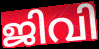
ജിവി